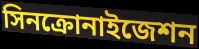
সিনক্রোনাইজেশন